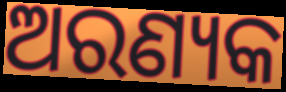
ଅରଣ୍ୟକ